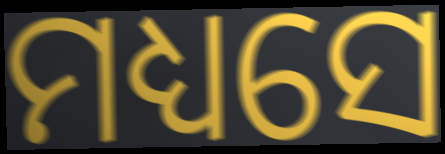
ମଧ୍ୟସେ